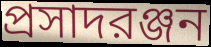
প্রসাদরঞ্জন